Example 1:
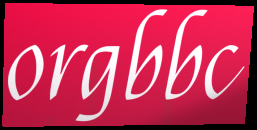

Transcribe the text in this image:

orgbbc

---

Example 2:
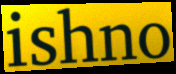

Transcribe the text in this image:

ishno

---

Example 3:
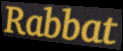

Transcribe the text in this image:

Rabbat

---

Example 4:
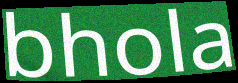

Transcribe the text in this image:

bhola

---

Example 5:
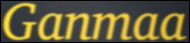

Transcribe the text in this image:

Ganmaa